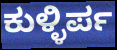
ಕುಳ್ಳಿರ್ಪ